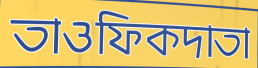
তাওফিকদাতা